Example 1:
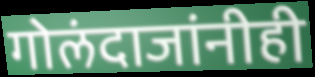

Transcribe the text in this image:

गोलंदाजांनीही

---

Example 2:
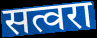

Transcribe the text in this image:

सत्वरा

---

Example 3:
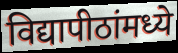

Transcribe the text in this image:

विद्यापीठांमध्ये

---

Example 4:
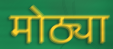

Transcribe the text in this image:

मोठ्या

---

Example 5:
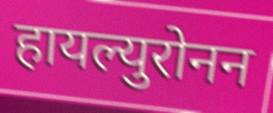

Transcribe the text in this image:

हायल्युरोनन